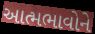
આત્મભાવોને